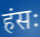
हंसः